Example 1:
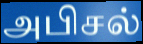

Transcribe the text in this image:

அபிசல்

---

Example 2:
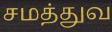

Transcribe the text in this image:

சமத்துவ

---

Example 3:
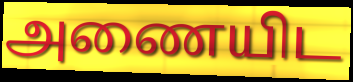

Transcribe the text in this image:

அணையிட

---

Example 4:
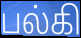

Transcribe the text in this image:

பல்கி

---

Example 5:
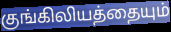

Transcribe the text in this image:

குங்கிலியத்தையும்